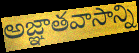
అజ్ఞాతవాసాన్ని